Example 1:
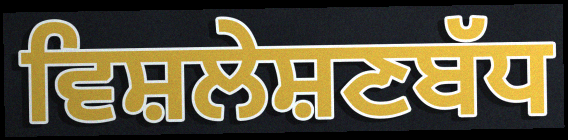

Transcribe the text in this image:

ਵਿਸ਼ਲੇਸ਼ਣਬੱਧ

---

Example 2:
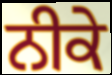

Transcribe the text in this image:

ਨੀਕੇ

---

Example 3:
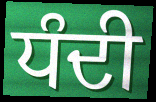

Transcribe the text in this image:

ਧੰਦੀ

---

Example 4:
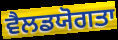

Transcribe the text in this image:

ਵੈਲਡਯੋਗਤਾ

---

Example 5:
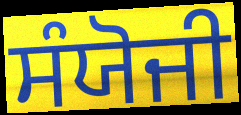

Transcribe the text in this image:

ਸੰਯੋਜੀ